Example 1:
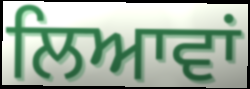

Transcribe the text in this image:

ਲਿਆਵਾਂ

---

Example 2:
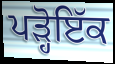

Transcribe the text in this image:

ਪੜ੍ਹੋਇੱਕ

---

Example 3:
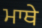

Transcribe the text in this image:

ਮਾਥੇ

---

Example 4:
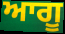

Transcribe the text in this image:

ਆਗੂ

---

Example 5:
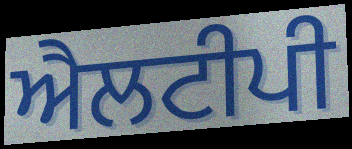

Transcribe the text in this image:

ਐਲਟੀਪੀ